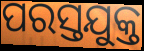
ପରସ୍ତଯୁକ୍ତ